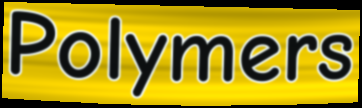
Polymers